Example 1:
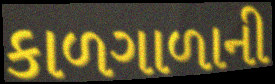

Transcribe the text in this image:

કાળગાળાની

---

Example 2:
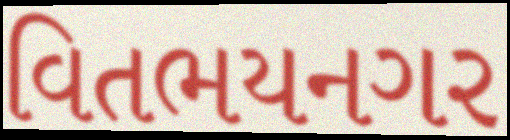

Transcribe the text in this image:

વિતભયનગર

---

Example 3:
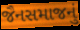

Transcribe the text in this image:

જૈનસમાજનું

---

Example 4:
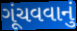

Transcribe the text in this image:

ગૂંચવવાનું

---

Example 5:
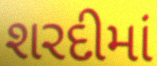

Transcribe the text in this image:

શરદીમાં